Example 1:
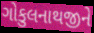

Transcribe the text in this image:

ગોકુલનાથજીને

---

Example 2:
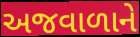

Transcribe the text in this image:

અજવાળાને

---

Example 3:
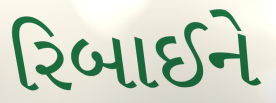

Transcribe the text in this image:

રિબાઈને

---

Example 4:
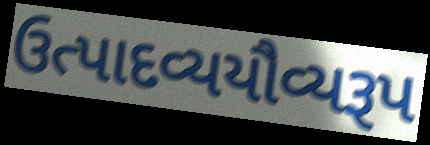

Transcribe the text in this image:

ઉત્પાદવ્યયૌવ્યરૂપ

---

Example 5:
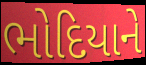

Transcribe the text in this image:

ભોદિયાને